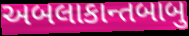
અબલાકાન્તબાબુ